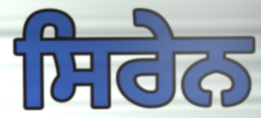
ਸਿਰੇਨ